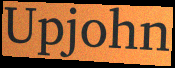
Upjohn